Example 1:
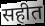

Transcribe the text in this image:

सहीत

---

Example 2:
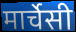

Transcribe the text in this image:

मार्चेसी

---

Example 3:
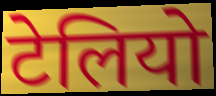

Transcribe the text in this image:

टेलियो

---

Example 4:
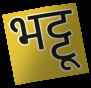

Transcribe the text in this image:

भट्टू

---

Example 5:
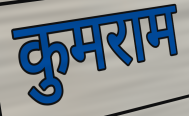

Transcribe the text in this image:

कुमराम